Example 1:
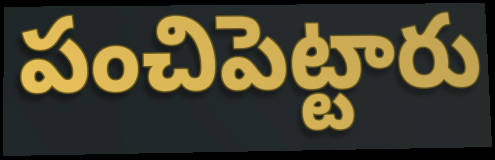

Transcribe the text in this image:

పంచిపెట్టారు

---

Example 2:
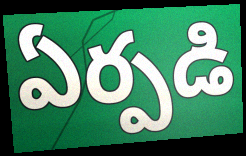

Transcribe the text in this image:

ఏర్పడి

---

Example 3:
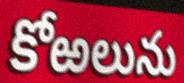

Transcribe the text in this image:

కోఱలును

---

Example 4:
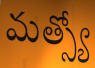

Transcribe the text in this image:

మత్స్యో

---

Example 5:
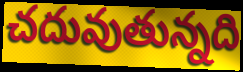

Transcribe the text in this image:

చదువుతున్నది